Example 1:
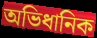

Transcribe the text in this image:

অভিধানিক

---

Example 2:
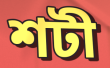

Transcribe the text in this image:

শটী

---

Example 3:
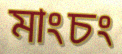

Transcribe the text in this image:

মাংচং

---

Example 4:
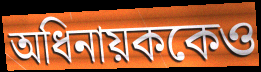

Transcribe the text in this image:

অধিনায়ককেও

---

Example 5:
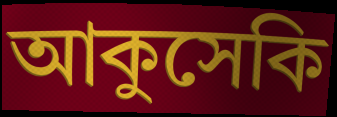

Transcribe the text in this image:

আকুসেকি